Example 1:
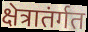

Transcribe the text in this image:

क्षेत्रातंर्गत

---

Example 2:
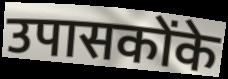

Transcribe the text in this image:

उपासकोंके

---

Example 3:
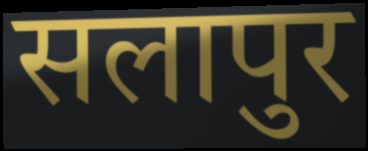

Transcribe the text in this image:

सलापुर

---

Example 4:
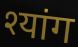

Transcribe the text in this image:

श्यांग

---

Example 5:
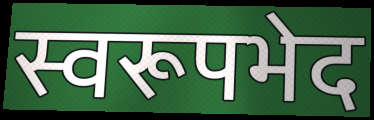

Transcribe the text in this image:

स्वरूपभेद